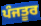
ਪੰਜਤੂਰ